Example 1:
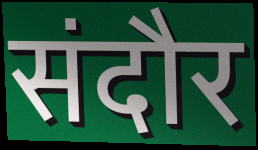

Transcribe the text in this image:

संदौर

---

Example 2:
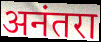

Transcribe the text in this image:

अनंतरा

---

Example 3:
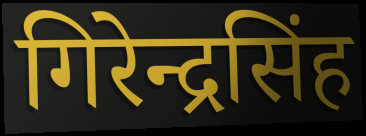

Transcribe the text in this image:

गिरेन्द्रसिंह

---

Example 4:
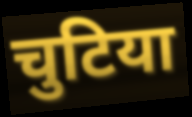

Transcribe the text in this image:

चुटिया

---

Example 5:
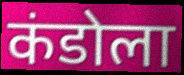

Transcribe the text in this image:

कंडोला